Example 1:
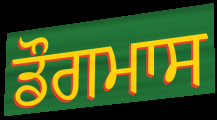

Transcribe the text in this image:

ਡੌਗਮਾਸ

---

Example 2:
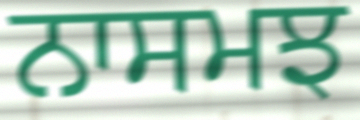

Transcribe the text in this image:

ਨਾਸਮਝ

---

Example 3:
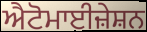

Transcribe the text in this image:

ਐਟੋਮਾਈਜ਼ੇਸ਼ਨ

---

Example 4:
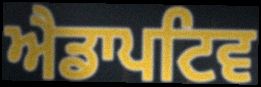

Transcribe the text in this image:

ਐਡਾਪਟਿਵ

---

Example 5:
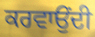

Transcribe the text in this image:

ਕਰਵਾਉਂਦੀ